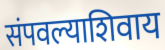
संपवल्याशिवाय